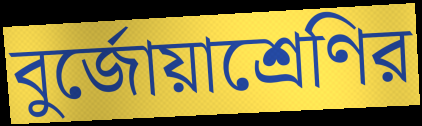
বুর্জোয়াশ্রেণির